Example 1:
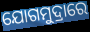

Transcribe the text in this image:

ଯୋଗମୁଦ୍ରାରେ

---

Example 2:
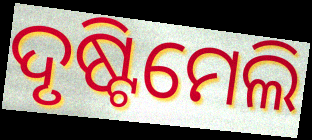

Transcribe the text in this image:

ଦୃଷ୍ଟିମେଲି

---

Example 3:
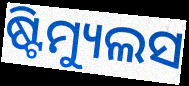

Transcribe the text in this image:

ଷ୍ଟିମ୍ୟୁଲସ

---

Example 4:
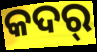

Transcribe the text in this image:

କଦର୍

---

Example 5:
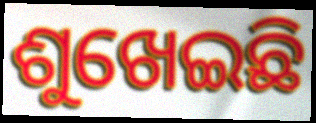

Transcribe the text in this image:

ଶୁଖେଇଛି